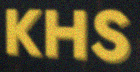
KHS